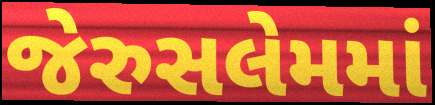
જેરુસલેમમાં